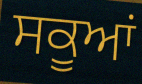
ਸਕੂਆਂ